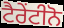
ਟੈਰੇਂਟੀਨੋ